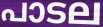
പാടല